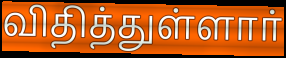
விதித்துள்ளார்